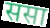
ससा